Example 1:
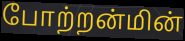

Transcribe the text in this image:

போற்றன்மின்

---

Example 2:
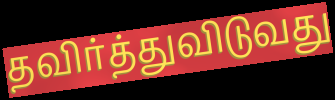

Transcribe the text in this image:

தவிர்த்துவிடுவது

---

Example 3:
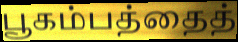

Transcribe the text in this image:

பூகம்பத்தைத்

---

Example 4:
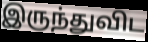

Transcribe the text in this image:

இருந்துவிட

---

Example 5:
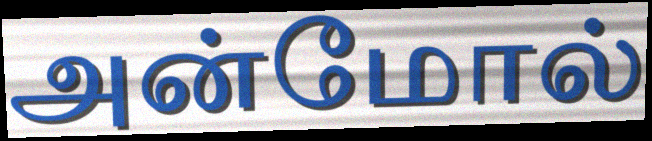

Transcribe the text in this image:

அன்மோல்